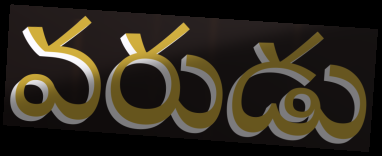
వరుడు